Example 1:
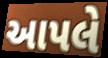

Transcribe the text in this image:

આપલે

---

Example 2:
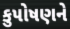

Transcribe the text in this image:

કુપોષણને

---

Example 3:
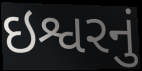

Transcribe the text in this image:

ઇશ્વરનું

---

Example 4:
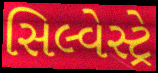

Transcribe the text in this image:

સિલ્વેસ્ટ્રે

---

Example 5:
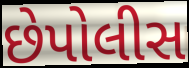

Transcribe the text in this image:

છેપોલીસ